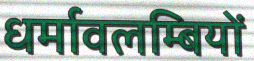
धर्मावलम्बियों